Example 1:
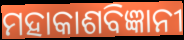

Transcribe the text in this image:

ମହାକାଶବିଜ୍ଞାନୀ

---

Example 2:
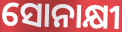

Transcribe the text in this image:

ସୋନାକ୍ଷୀ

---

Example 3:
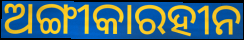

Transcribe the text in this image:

ଅଙ୍ଗୀକାରହୀନ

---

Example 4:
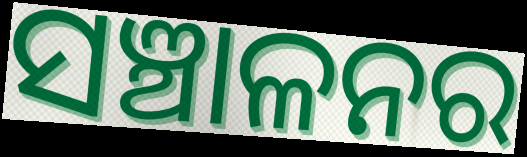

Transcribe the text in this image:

ସଞ୍ଚାଳନର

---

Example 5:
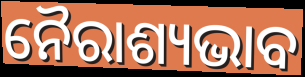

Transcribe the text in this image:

ନୈରାଶ୍ୟଭାବ